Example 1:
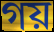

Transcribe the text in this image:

গয়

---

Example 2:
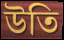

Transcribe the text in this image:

উতি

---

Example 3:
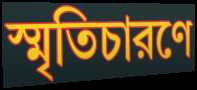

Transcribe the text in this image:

স্মৃতিচারণে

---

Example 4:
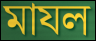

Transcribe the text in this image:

মাযল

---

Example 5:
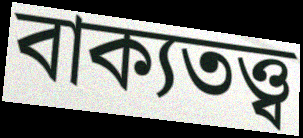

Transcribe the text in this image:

বাক্যতত্ত্ব